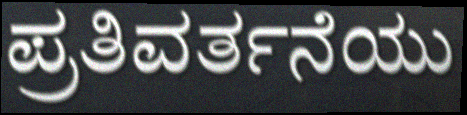
ಪ್ರತಿವರ್ತನೆಯು